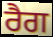
ਰੈਗ